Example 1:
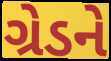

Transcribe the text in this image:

ગ્રેડને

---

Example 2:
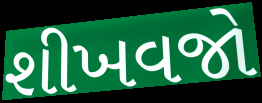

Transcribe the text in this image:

શીખવજો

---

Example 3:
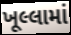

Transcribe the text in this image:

ખૂલ્લામાં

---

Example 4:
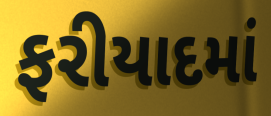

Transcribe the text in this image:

ફરીયાદમાં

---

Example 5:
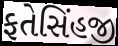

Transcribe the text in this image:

ફતેસિંહજી